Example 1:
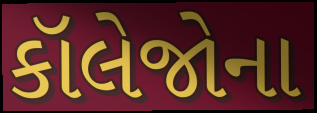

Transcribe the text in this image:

કૉલેજોના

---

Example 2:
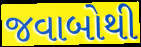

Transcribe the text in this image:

જવાબોથી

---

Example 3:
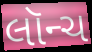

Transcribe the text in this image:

લૉન્ચ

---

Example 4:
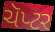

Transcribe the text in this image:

ચૅપ્ટર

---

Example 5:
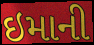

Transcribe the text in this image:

ઇમાની